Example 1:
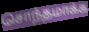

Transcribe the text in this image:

சொந்தமாக்க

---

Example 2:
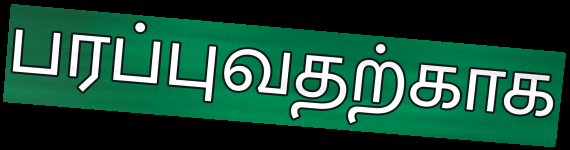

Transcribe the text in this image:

பரப்புவதற்காக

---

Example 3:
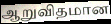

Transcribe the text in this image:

ஆறுவிதமான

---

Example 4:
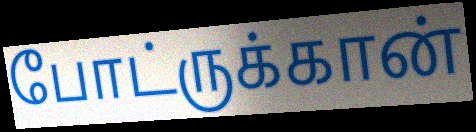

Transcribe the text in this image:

போட்ருக்கான்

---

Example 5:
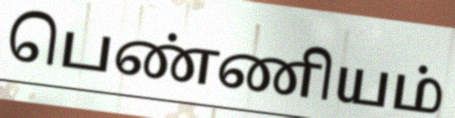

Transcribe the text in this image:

பெண்ணியம்